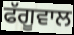
ਫੱਗੂਵਾਲ